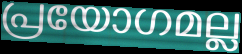
പ്രയോഗമല്ല